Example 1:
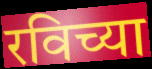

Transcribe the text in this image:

रविच्या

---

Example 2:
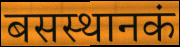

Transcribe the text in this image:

बसस्थानकं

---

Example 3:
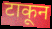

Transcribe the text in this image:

टाकून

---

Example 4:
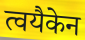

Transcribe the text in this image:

त्वयैकेन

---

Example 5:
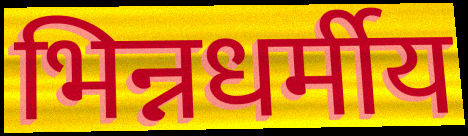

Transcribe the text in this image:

भिन्नधर्मीय